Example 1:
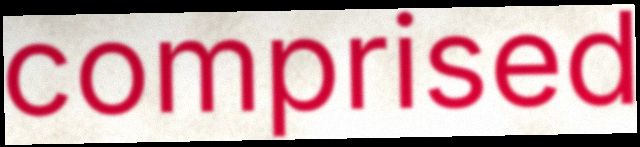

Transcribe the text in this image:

comprised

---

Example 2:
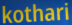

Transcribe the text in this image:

kothari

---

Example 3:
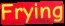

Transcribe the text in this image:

Frying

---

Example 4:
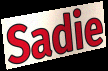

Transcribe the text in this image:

Sadie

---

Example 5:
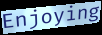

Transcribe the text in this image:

Enjoying